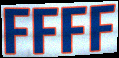
FFFF